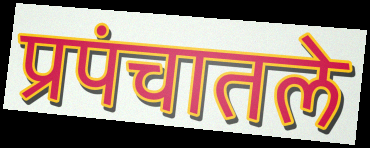
प्रपंचातले